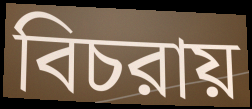
বিচরায়